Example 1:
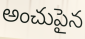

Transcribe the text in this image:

అంచుపైన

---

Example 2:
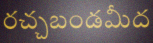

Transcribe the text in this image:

రచ్చబండమీద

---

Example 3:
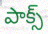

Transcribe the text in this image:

పాక్స్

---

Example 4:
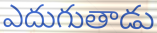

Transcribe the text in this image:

ఎదుగుతాడు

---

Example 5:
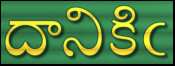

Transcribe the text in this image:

దానికిఁ